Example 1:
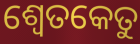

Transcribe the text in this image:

ଶ୍ୱେତକେତୁ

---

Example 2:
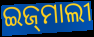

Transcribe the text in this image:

ଇଜ୍‌ମାଲୀ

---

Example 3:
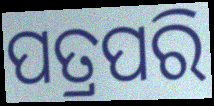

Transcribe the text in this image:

ପତ୍ରପରି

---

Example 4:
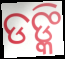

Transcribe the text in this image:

ଡଙ୍କି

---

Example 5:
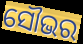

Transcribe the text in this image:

ସୌଭର